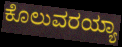
ಕೊಲುವರಯ್ಯಾ